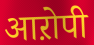
आऱोपी